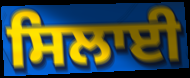
ਸਿਲਾਈ